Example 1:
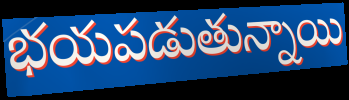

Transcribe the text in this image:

భయపడుతున్నాయి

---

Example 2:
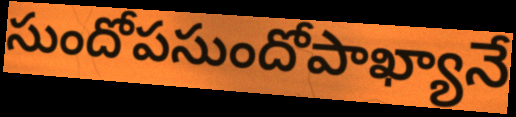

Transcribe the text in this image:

సుందోపసుందోపాఖ్యానే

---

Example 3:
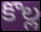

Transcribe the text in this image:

కొల్ల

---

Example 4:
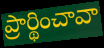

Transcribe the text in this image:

ప్రార్థించావా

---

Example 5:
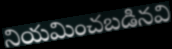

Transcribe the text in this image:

నియమించబడినవి